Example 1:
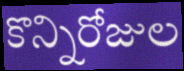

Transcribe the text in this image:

కొన్నిరోజుల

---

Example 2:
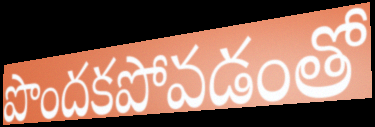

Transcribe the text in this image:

పొందకపోవడంతో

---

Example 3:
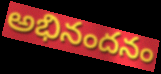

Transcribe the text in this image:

అభినందనం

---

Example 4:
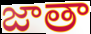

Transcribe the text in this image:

జాతా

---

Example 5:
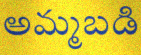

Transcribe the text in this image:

అమ్మబడి